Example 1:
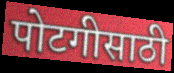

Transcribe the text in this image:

पोटगीसाठी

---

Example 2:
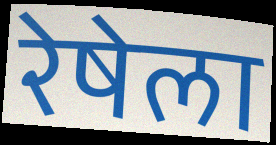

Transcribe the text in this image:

रेषेला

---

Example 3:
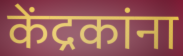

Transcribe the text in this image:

केंद्रकांना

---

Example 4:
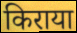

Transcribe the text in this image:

किराया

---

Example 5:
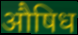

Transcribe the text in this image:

औषिध